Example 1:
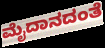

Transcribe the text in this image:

ಮೈದಾನದಂತೆ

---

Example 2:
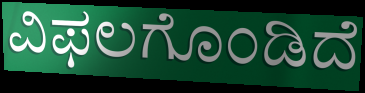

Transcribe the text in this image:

ವಿಫಲಗೊಂಡಿದೆ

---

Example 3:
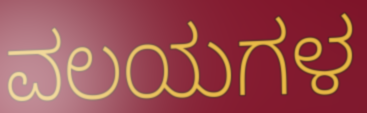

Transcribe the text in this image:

ವಲಯಗಳ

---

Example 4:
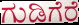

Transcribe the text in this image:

ಗುಡಿಗೆರೆ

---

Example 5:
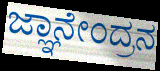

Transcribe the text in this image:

ಜ್ಞಾನೇಂದ್ರನ